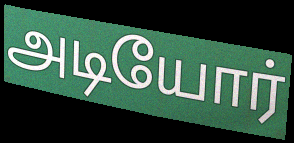
அடியோர்